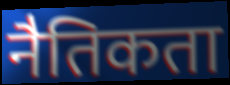
नैतिकता